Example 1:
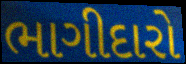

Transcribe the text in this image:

ભાગીદારો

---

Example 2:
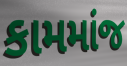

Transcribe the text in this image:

કામમાંજ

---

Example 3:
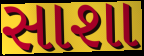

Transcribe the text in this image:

સાશા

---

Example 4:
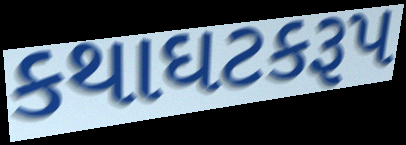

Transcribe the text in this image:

કથાઘટકરૂપ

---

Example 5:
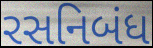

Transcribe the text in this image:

રસનિબંધ